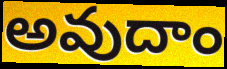
అవుదాం